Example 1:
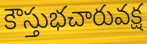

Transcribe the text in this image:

కౌస్తుభచారువక్ష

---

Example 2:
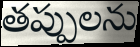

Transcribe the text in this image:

తప్పులను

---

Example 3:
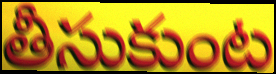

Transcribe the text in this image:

తీసుకుంట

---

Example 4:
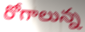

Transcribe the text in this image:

రోగాలున్న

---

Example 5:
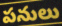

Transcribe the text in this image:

పనులు